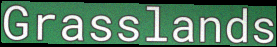
Grasslands